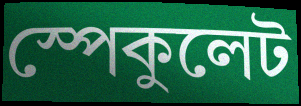
স্পেকুলেট